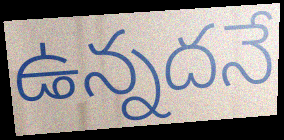
ఉన్నదనే